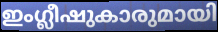
ഇംഗ്ലീഷുകാരുമായി